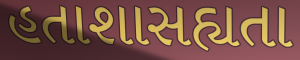
હતાશાસહ્યતા